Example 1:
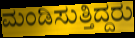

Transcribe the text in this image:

ಮಂಡಿಸುತ್ತಿದ್ದರು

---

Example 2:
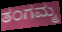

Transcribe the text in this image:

ತಂಗಮ್ಮ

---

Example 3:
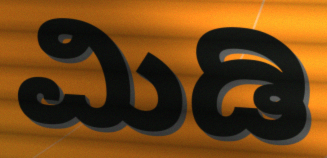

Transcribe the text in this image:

ಮಿಡಿ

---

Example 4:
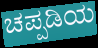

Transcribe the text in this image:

ಚಪ್ಪಡಿಯ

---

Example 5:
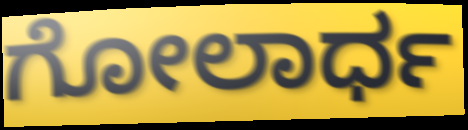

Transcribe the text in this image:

ಗೋಲಾರ್ಧ